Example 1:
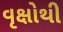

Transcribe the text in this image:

વૃક્ષોથી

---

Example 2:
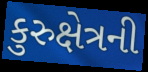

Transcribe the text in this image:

કુરુક્ષેત્રની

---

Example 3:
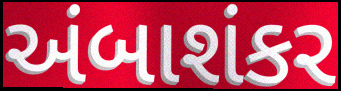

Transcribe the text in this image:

અંબાશંકર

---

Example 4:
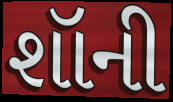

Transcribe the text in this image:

શૉની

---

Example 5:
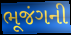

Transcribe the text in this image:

ભૂજંગની